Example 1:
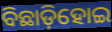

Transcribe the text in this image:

ବିଛାଡ଼ିହୋଇ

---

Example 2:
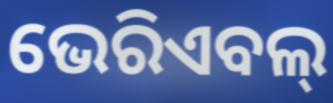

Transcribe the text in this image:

ଭେରିଏବଲ୍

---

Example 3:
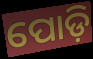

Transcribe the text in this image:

ପୋଡ଼ି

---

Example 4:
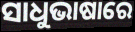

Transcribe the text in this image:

ସାଧୁଭାଷାରେ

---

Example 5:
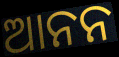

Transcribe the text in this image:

ଆନନ